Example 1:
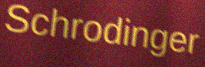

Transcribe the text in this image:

Schrodinger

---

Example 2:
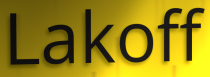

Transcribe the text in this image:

Lakoff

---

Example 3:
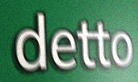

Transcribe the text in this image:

detto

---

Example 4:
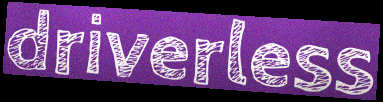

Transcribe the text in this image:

driverless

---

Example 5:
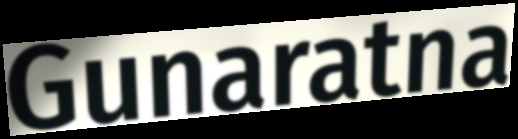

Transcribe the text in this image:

Gunaratna